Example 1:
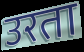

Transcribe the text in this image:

उरता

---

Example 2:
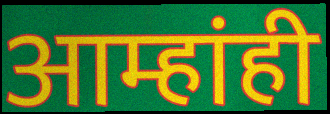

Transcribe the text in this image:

आम्हांही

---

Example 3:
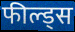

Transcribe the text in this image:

फील्ड्स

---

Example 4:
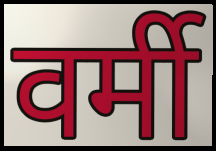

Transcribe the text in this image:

वर्मी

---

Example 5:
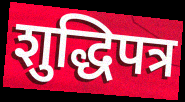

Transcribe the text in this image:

शुद्धिपत्र